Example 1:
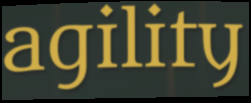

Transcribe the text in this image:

agility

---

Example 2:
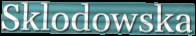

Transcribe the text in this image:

Sklodowska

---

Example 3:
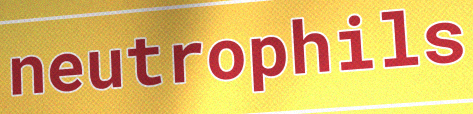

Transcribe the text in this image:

neutrophils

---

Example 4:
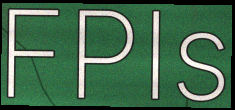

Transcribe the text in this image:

FPIs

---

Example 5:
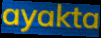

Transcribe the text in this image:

ayakta